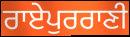
ਰਾਏਪੁਰਰਾਣੀ